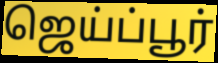
ஜெய்ப்பூர்